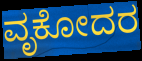
ವೃಕೋದರ